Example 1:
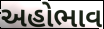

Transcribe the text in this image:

અહોભાવ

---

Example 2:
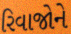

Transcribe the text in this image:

રિવાજોને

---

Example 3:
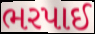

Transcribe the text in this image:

ભરપાઈ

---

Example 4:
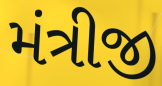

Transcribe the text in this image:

મંત્રીજી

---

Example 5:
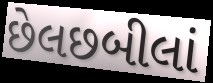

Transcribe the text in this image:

છેલછબીલાં